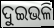
ଦୁଇଭଳି